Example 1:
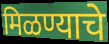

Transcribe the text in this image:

मिळण्याचे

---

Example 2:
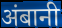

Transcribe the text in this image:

अंबानी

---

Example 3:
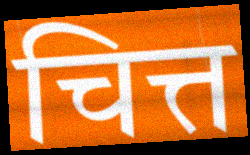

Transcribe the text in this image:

चित्त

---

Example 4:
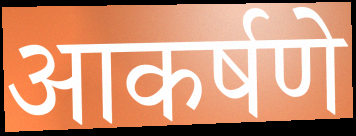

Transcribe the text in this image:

आकर्षणे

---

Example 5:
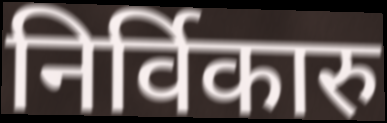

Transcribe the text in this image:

निर्विकारु